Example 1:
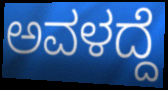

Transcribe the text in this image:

ಅವಳದ್ದೆ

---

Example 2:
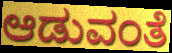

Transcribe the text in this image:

ಆಡುವಂತೆ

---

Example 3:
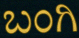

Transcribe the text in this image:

ಬಂಗಿ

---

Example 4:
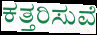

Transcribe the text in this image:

ಕತ್ತರಿಸುವೆ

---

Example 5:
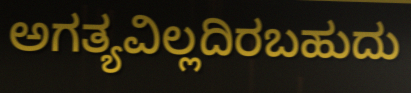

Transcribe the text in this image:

ಅಗತ್ಯವಿಲ್ಲದಿರಬಹುದು